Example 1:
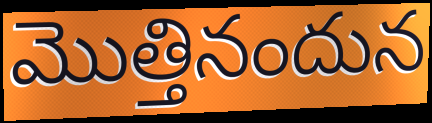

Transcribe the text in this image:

మొత్తినందున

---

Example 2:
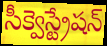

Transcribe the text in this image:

సీక్వెస్ట్రేషన్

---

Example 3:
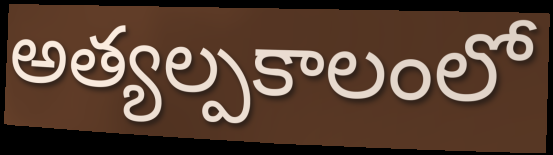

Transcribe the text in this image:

అత్యల్పకాలంలో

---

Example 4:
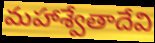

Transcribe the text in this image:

మహాశ్వేతాదేవి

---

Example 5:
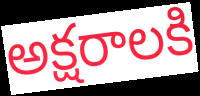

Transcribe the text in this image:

అక్షరాలకి